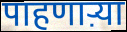
पाहणाऱ्‍या